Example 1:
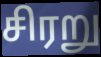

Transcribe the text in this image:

சிரறு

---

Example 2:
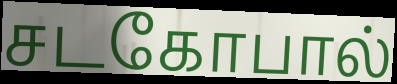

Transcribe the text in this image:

சடகோபால்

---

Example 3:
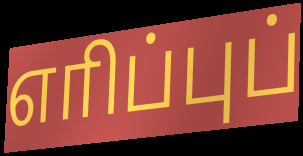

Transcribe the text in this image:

எரிப்புப்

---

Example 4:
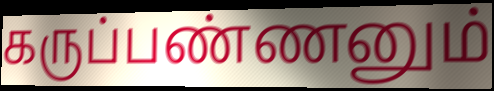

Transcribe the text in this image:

கருப்பண்ணனும்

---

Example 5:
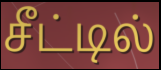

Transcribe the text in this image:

சீட்டில்